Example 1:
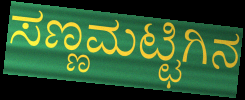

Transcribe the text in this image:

ಸಣ್ಣಮಟ್ಟಿಗಿನ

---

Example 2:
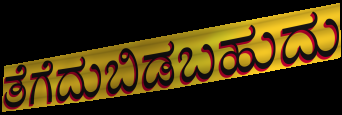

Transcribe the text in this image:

ತೆಗೆದುಬಿಡಬಹುದು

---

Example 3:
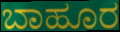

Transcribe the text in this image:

ಬಾಹೂರ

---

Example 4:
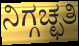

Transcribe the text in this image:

ನಿಗ್ಗಚ್ಛತಿ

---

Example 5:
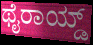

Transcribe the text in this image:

ಥೈರಾಯ್ಡ್